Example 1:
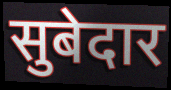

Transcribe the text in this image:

सुबेदार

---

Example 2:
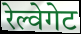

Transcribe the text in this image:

रेल्वेगेट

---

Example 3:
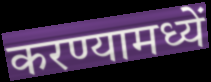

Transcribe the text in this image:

करण्यामध्यें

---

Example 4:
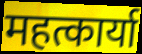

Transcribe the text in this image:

महत्कार्या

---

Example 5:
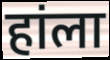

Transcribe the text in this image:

हांला